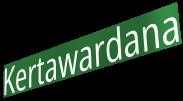
Kertawardana